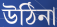
উঠিনা